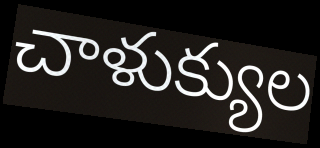
చాళుక్యుల